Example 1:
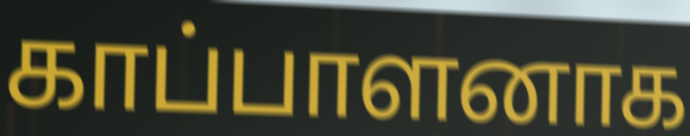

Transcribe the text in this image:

காப்பாளனாக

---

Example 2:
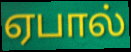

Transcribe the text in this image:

ஏபால்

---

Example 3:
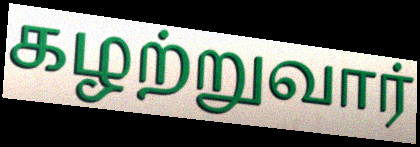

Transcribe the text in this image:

கழற்றுவார்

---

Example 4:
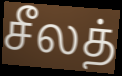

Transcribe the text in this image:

சீலத்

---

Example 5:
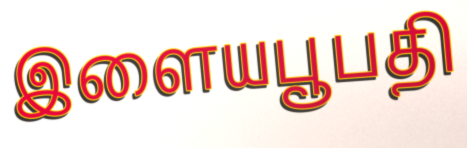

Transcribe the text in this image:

இளையபூபதி